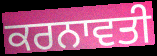
ਕਰਨਾਵਤੀ